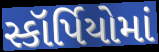
સ્કૉર્પિયોમાં